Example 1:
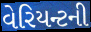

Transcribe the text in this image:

વેરિયન્ટની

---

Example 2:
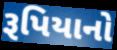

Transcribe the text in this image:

રૂપિયાનો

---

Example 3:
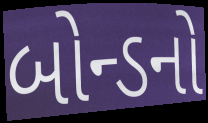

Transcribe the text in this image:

બોન્ડનો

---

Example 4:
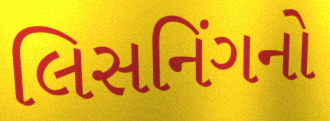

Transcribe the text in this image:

લિસનિંગનો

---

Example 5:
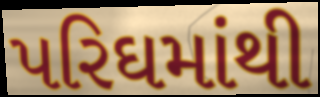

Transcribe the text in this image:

પરિઘમાંથી